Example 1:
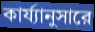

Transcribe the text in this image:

কার্য্যানুসারে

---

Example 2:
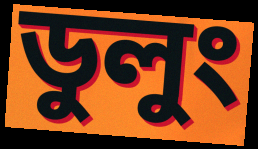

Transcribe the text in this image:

ডুলুং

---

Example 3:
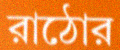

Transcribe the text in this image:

রাঠোর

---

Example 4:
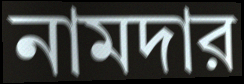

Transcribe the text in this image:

নামদার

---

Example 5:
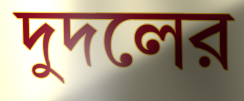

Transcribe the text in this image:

দুদলের